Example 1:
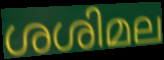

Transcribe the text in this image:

ശശിമല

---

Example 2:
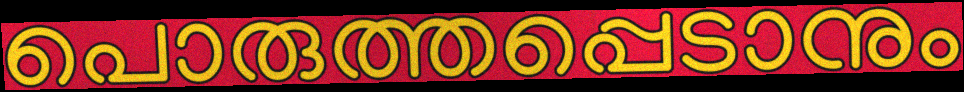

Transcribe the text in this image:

പൊരുത്തപ്പെടാനും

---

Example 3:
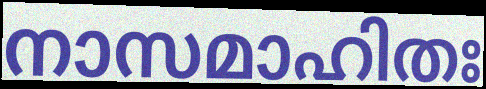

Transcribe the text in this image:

നാസമാഹിതഃ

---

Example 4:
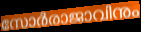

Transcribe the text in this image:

സോർരാജാവിനും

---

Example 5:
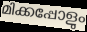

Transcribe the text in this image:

മിക്കപ്പോളും